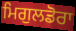
ਮਿਗੁਲਡੋਰਾ